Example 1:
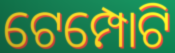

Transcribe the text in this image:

ଟେମ୍ପୋଟି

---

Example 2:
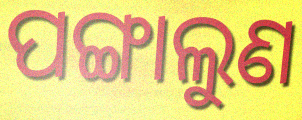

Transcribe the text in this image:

ପଙ୍ଗାଲୁଣ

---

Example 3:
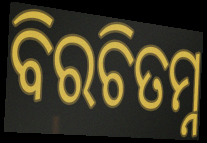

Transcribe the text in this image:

ବିରଚିତମ୍ନ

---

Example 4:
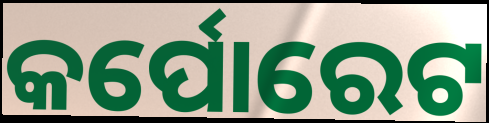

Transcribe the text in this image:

କର୍ପୋରେଟ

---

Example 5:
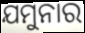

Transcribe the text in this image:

ଯମୁନାର